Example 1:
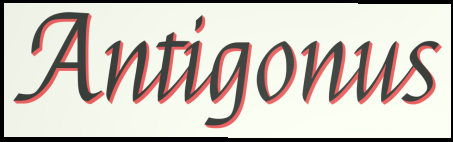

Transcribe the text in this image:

Antigonus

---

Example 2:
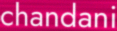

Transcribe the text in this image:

chandani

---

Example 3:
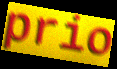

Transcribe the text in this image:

prio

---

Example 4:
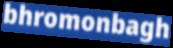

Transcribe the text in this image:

bhromonbagh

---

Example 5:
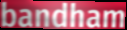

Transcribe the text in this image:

bandham